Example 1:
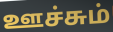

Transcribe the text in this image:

ஊச்சும்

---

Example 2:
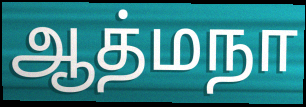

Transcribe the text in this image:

ஆத்மநா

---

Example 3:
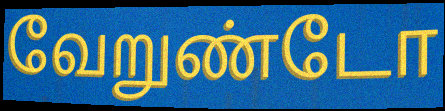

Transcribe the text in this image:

வேறுண்டோ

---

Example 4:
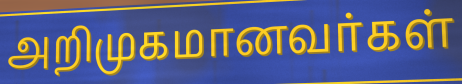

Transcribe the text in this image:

அறிமுகமானவர்கள்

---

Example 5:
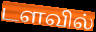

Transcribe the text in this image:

டளவில்